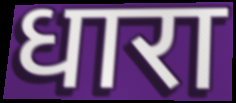
धारा